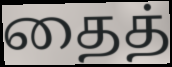
தைத்